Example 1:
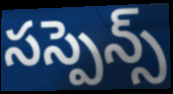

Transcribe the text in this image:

సస్పెన్స్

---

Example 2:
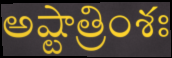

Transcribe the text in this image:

అష్టాత్రింశః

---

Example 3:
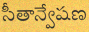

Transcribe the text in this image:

సీతాన్వేషణ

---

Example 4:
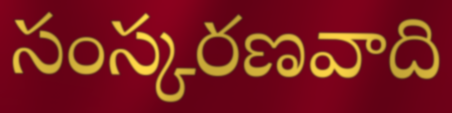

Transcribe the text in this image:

సంస్కరణవాది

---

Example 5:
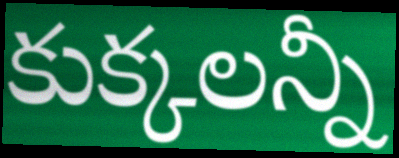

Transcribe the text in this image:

కుక్కలన్నీ